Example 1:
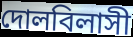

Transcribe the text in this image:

দোলবিলাসী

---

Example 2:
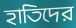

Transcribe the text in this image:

হাতিদের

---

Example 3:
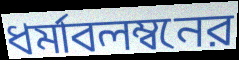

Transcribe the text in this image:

ধর্মাবলম্বনের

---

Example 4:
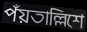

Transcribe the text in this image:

পঁয়তাল্লিশে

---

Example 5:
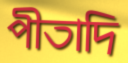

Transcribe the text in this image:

পীতাদি